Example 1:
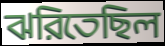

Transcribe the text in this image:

ঝরিতেছিল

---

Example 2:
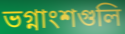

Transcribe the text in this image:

ভগ্নাংশগুলি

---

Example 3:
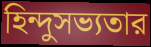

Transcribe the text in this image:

হিন্দুসভ্যতার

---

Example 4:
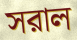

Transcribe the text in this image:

সরাল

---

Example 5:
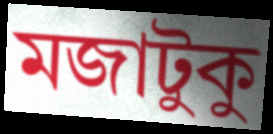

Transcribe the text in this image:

মজাটুকু